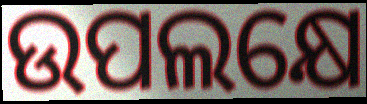
ଉପଲକ୍ଷେ